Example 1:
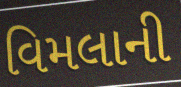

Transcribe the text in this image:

વિમલાની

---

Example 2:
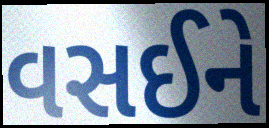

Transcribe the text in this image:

વસઈને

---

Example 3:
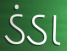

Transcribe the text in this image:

ડંડા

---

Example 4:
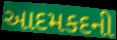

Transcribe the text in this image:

આદમકદની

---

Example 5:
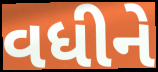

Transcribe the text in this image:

વધીને